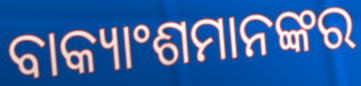
ବାକ୍ୟାଂଶମାନଙ୍କର